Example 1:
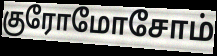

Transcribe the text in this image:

குரோமோசோம்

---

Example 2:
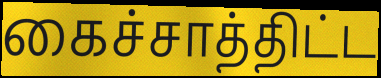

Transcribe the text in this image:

கைச்சாத்திட்ட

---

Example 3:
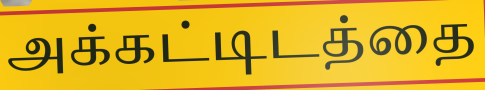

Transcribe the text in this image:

அக்கட்டிடத்தை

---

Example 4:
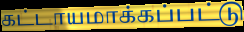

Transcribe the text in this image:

கட்டாயமாக்கப்பட்டு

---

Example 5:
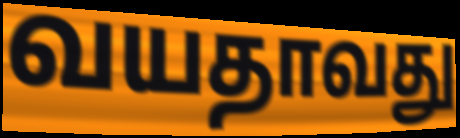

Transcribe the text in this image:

வயதாவது